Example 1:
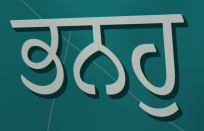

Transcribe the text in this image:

ਭਨਹੁ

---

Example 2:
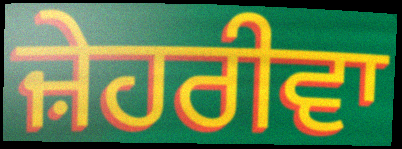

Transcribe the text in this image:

ਜ਼ੇਹਰੀਵਾ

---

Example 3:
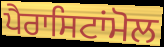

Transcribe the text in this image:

ਪੈਰਾਸਿਟਾਂਮੋਲ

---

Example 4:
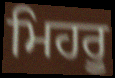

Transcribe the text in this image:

ਮਿਹਰੂ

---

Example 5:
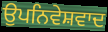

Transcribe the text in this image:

ਉਪਨਿਵੇਸ਼ਵਾਦ